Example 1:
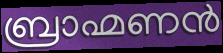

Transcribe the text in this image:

ബ്രാഹ്മണൻ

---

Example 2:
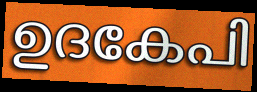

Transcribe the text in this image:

ഉദകേപി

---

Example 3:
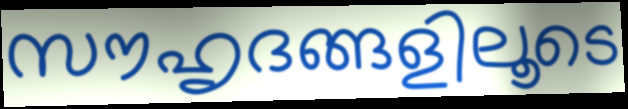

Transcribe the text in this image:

സൗഹൃദങ്ങളിലൂടെ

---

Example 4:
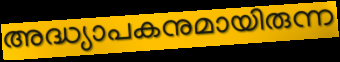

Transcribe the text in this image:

അദ്ധ്യാപകനുമായിരുന്ന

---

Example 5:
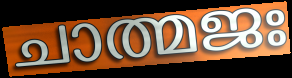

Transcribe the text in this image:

ചാത്മജഃ